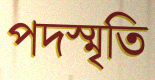
পদস্মৃতি